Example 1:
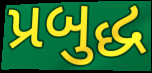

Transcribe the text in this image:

પ્રબુદ્ધ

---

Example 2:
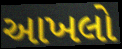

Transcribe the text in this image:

આખલો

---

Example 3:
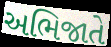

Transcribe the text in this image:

અભિજાતે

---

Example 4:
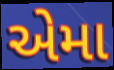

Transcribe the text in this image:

એમા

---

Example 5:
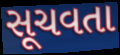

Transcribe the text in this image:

સૂચવતા